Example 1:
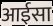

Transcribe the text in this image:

आईसा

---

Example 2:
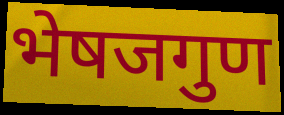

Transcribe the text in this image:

भेषजगुण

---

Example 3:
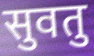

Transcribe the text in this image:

सुवतु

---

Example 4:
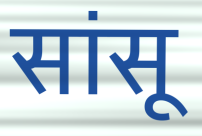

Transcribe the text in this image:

सांसू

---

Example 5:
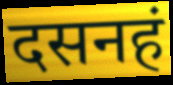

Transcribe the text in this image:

दसनहं